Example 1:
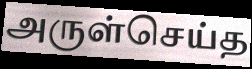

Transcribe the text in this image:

அருள்செய்த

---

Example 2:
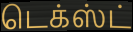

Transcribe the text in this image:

டெக்ஸ்ட்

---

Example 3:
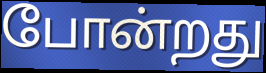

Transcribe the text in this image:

போன்றது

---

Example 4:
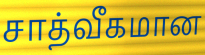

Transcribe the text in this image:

சாத்வீகமான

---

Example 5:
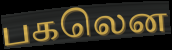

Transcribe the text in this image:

பகலென